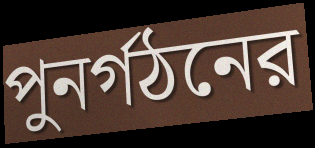
পুনর্গঠনের